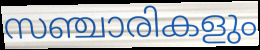
സഞ്ചാരികളും